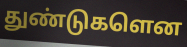
துண்டுகளென